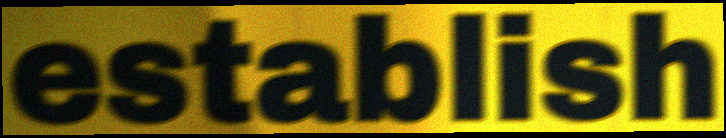
establish